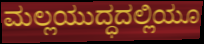
ಮಲ್ಲಯುದ್ಧದಲ್ಲಿಯೂ